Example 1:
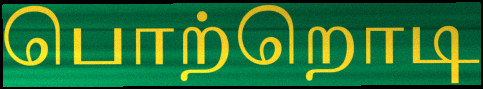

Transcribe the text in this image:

பொற்றொடி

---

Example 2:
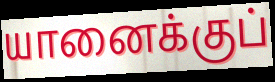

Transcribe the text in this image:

யானைக்குப்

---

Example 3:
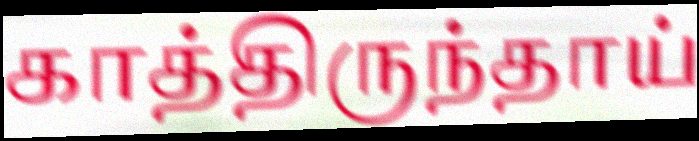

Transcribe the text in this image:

காத்திருந்தாய்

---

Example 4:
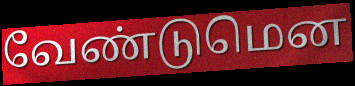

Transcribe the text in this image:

வேண்டுமென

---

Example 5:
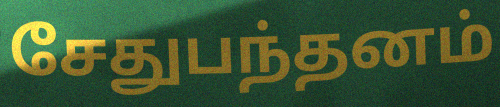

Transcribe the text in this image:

சேதுபந்தனம்